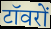
टॉवरों